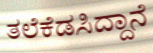
ತಲೆಕೆಡಸಿದ್ದಾನೆ